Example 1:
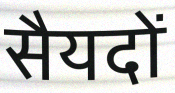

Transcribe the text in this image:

सैयदों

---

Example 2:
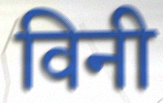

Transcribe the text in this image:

विनी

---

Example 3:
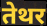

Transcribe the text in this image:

तेथर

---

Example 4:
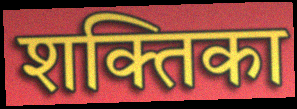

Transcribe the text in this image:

शक्तिका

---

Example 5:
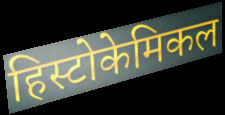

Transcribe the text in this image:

हिस्टोकेमिकल